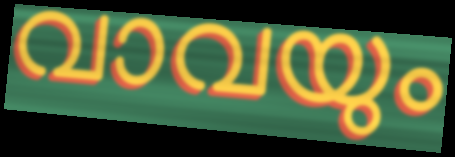
വാവയും